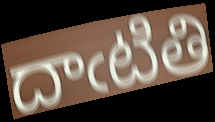
దాఁటితి